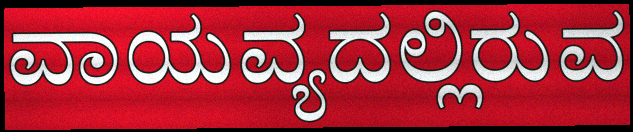
ವಾಯವ್ಯದಲ್ಲಿರುವ